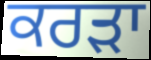
ਕਰੜਾ